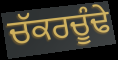
ਚੱਕਰਚੂੰਢੇ